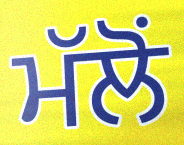
ਮੱਲੋਂ